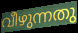
വീഴുന്നതു